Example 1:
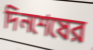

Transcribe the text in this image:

দিনশেষের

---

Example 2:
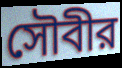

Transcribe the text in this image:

সৌবীর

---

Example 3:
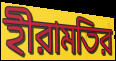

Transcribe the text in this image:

হীরামতির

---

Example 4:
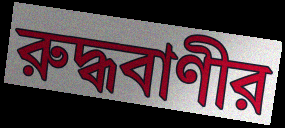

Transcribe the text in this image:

রুদ্ধবাণীর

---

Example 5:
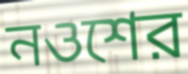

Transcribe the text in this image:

নওশের